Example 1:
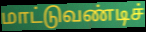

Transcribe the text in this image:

மாட்டுவண்டிச்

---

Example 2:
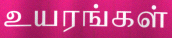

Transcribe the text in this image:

உயரங்கள்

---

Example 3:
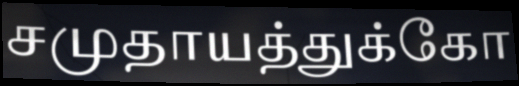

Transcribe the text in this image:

சமுதாயத்துக்கோ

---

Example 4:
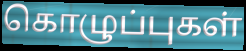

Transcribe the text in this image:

கொழுப்புகள்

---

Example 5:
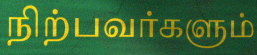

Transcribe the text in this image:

நிற்பவர்களும்